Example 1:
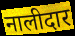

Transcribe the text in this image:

नालीदार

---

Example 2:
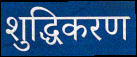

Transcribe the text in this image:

शुद्धिकरण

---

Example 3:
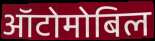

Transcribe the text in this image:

ऑटोमोबिल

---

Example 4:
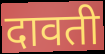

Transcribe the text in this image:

दावती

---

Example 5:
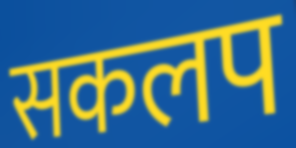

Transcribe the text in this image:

सकलप